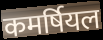
कमर्षियल